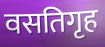
वसतिगृह